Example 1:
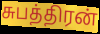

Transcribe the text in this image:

சுபத்திரன்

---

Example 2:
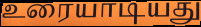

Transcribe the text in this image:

உரையாடியது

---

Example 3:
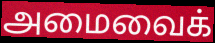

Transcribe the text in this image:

அமைவைக்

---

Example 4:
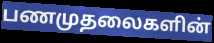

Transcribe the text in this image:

பணமுதலைகளின்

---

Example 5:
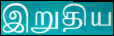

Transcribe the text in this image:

இறுதிய